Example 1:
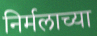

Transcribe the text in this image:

निर्मलाच्या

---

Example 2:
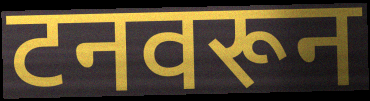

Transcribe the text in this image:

टनवरून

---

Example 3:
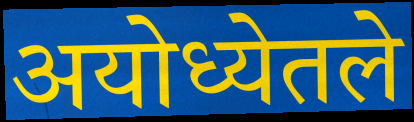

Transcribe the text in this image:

अयोध्येतले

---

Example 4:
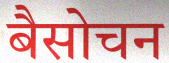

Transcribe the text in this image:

बैसोचन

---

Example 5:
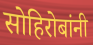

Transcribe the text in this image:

सोहिरोबांनी